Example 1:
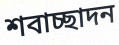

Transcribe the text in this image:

শবাচ্ছাদন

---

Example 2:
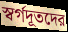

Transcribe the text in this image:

স্বর্গদূতদের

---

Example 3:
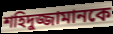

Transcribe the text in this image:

শহিদুজ্জামানকে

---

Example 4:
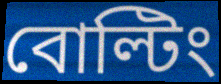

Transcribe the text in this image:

বোল্টিং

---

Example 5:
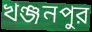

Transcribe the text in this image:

খঞ্জনপুর